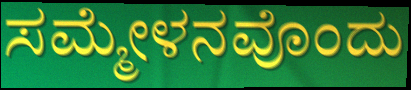
ಸಮ್ಮೇಳನವೊಂದು